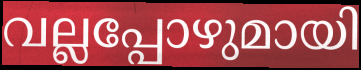
വല്ലപ്പോഴുമായി